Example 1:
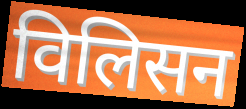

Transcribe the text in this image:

विलिसन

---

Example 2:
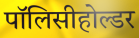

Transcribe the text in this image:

पॉलिसीहोल्डर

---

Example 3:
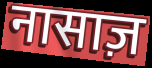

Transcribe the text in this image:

नासाज़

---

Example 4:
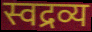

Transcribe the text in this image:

स्वद्रव्य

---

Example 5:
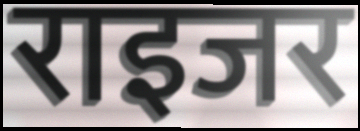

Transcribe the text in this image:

राइजर